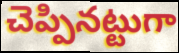
చెప్పినట్టుగా